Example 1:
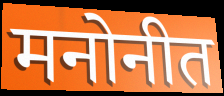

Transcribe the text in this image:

मनोनीत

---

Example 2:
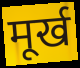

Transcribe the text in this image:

मूर्ख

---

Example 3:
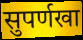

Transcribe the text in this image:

सुपर्णखा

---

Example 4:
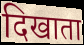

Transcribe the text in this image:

दिखाता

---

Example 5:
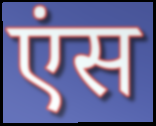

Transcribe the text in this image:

एंस